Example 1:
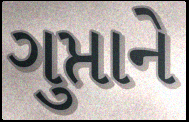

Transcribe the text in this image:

ગુપ્તાને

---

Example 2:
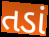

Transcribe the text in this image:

તડાં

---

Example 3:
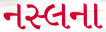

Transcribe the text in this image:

નસ્લના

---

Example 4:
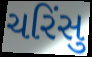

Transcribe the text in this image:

ચરિંસુ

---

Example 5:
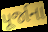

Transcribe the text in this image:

પૂર્જાના